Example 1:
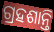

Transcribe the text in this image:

ଗ୍ରହଶାନ୍ତି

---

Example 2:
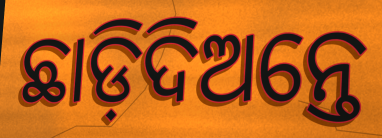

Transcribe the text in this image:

ଛାଡ଼ିଦିଅନ୍ତେ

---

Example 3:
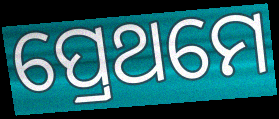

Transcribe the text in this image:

ପ୍ରେଥମେ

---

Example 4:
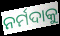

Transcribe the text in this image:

ନର୍ମଦାକୁ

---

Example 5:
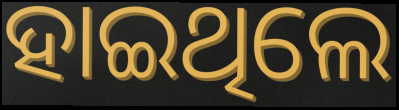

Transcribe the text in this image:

ହାଇଥିଲେ